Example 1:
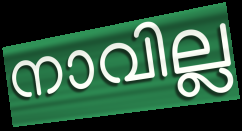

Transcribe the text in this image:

നാവില്ല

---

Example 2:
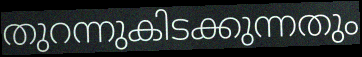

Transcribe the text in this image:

തുറന്നുകിടക്കുന്നതും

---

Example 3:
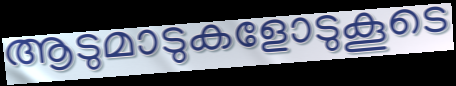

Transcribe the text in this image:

ആടുമാടുകളോടുകൂടെ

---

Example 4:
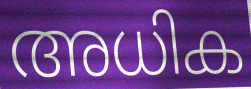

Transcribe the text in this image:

അധിക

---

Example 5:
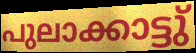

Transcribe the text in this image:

പുലാക്കാട്ടു്